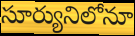
సూర్యునిలోనూ